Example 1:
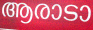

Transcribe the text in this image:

ആരാടാ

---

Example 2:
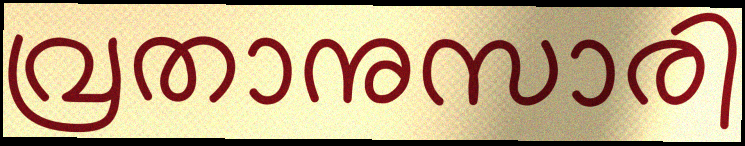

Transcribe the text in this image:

വ്രതാനുസാരി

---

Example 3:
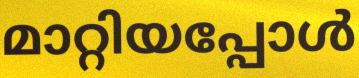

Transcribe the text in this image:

മാറ്റിയപ്പോൾ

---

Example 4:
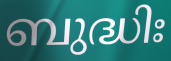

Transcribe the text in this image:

ബുദ്ധിഃ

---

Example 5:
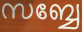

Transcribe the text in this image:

സബ്ബേ